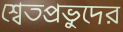
শ্বেতপ্রভুদের